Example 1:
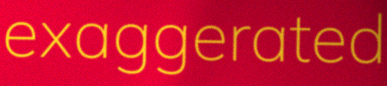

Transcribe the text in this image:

exaggerated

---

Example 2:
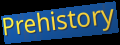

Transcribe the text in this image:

Prehistory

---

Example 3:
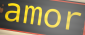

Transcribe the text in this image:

amor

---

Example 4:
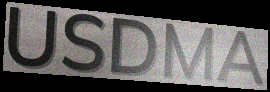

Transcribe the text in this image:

USDMA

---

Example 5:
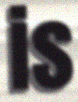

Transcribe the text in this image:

is